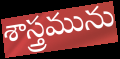
శాస్త్రమును